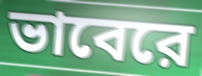
ভাবেরে